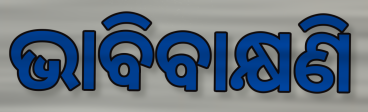
ଭାବିବାକ୍ଷଣି